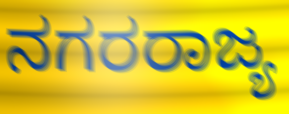
ನಗರರಾಜ್ಯ